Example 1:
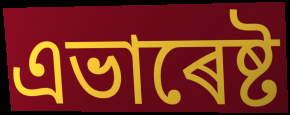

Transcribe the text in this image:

এভাৰেষ্ট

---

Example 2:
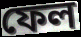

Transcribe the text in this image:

ফেল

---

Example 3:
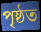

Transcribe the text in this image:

পৃষ্ঠত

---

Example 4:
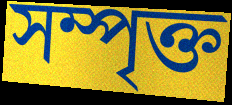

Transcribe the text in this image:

সম্পৃক্ত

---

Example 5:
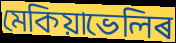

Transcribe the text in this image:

মেকিয়াভেলিৰ